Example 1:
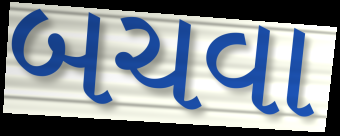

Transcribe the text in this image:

બચવા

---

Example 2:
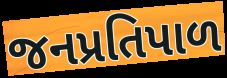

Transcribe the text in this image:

જનપ્રતિપાળ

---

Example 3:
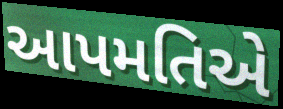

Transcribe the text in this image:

આપમતિએ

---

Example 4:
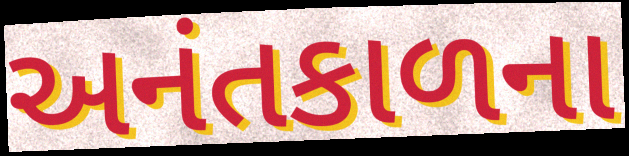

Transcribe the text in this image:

અનંતકાળના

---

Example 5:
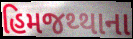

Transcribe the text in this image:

હિમજથ્થાના